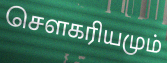
சௌகரியமும்